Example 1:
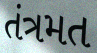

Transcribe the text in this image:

તંત્રમત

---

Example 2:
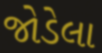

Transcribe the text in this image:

જોડેલા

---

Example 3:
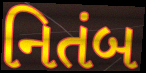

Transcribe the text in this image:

નિતંબ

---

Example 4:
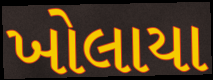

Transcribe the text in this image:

ખોલાયા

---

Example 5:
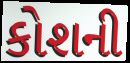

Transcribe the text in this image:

કોશની